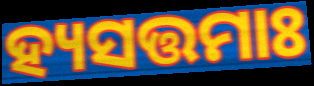
ହ୍ୟସତ୍ତମାଃ